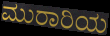
ಮುರಾರಿಯ